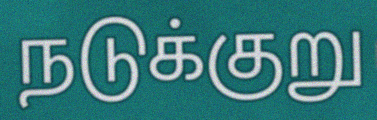
நடுக்குறு